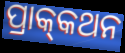
ପ୍ରାକ୍‍କଥନ